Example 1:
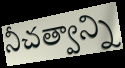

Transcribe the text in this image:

నీచత్వాన్ని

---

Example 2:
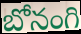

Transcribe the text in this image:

బోనంగి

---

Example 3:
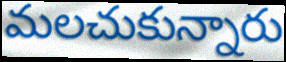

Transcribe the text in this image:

మలచుకున్నారు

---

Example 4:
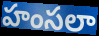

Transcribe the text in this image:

హంసలా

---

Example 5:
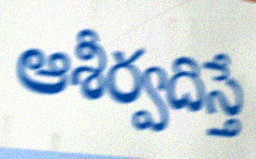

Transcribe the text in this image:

ఆశీర్వదిస్తే